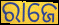
ରାଜେ